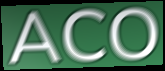
ACO